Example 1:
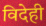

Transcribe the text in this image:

विदेही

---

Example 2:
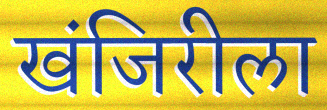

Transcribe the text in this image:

खंजिरीला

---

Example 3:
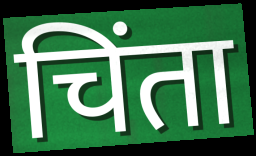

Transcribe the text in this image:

चिंता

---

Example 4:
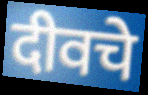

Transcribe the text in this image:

दीवचे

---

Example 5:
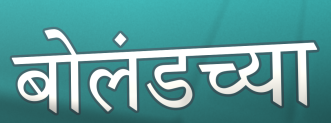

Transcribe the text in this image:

बोलंडच्या